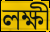
লক্ষী